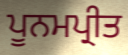
ਪੂਨਮਪ੍ਰੀਤ